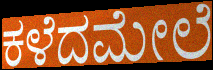
ಕಳೆದಮೇಲೆ